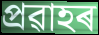
প্ৰৱাহৰ